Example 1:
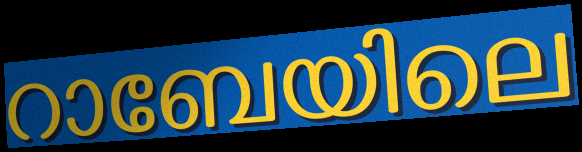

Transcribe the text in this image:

റാബേയിലെ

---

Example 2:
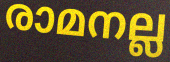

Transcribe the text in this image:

രാമനല്ല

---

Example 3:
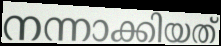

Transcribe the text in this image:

നന്നാക്കിയത്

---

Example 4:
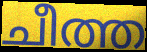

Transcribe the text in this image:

ചീത്ത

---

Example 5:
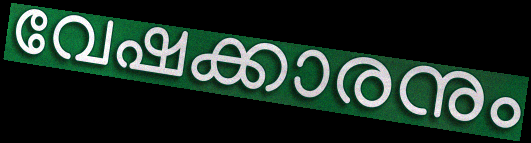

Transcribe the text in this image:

വേഷക്കാരനും